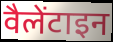
वैलेंटाइन